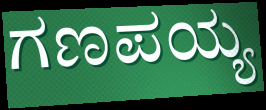
ಗಣಪಯ್ಯ